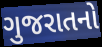
ગુજરાતનો